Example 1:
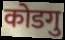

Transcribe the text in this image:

कोडगु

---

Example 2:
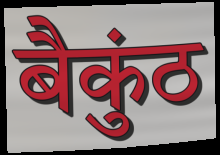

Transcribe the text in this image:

बैकुंठ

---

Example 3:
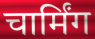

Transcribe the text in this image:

चार्मिंग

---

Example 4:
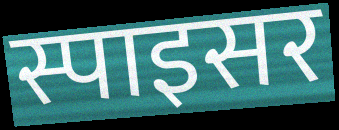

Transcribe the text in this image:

स्पाइसर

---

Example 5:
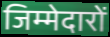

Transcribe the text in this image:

जिम्मेदारों